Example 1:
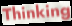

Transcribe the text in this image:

Thinking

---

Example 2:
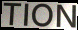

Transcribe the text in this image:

TION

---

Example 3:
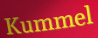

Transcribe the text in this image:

Kummel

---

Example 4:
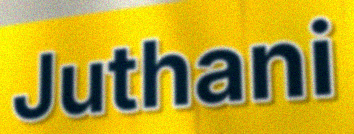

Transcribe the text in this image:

Juthani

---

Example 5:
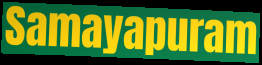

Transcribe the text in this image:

Samayapuram